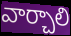
వార్చాలి